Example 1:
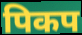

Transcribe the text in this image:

पिकप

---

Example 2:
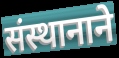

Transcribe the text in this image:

संस्थानाने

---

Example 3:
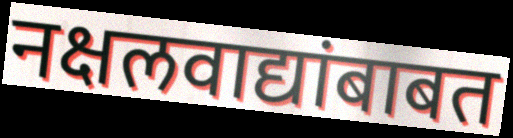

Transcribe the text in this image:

नक्षलवाद्यांबाबत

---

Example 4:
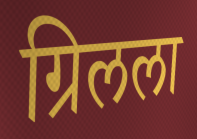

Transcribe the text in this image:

ग्रिलला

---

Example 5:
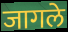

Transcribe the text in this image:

जागले